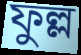
ফুল্ল